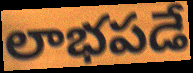
లాభపడే